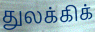
துலக்கிக்